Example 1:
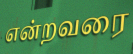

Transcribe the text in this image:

என்றவரை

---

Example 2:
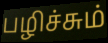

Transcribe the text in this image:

பழிச்சும்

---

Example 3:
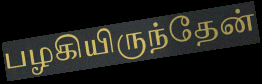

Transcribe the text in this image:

பழகியிருந்தேன்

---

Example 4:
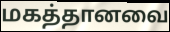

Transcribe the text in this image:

மகத்தானவை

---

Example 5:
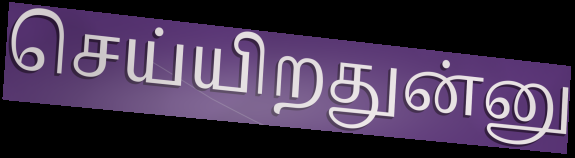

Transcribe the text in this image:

செய்யிறதுன்னு